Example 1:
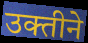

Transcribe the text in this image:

उक्तीने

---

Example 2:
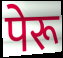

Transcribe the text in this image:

पेरू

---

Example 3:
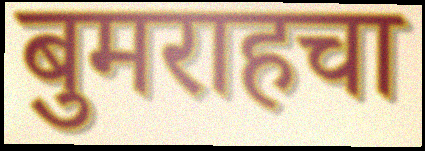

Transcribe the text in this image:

बुमराहचा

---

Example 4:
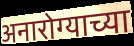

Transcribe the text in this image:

अनारोग्याच्या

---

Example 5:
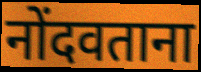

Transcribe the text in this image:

नोंदवताना